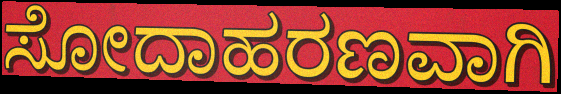
ಸೋದಾಹರಣವಾಗಿ